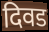
दिवड